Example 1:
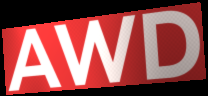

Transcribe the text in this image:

AWD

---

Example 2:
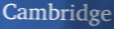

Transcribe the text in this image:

Cambridge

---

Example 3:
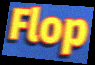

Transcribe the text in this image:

Flop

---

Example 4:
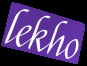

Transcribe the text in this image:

lekho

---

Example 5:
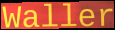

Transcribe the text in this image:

Waller